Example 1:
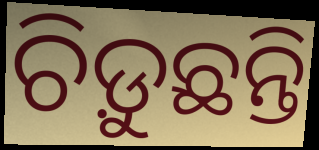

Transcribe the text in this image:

ଚିଡ଼ୁଛନ୍ତି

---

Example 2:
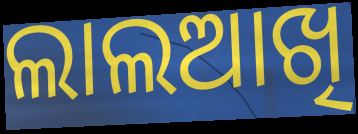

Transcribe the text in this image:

ଲାଲଆଖି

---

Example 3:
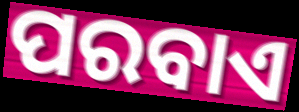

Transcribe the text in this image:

ପରବାଏ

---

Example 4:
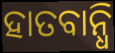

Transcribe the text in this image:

ହାତବାନ୍ଧି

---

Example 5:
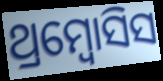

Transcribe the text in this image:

ଥ୍ରମ୍ବୋସିସ